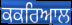
ਕਕਰਿਆਲ